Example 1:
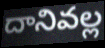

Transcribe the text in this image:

దానివల్ల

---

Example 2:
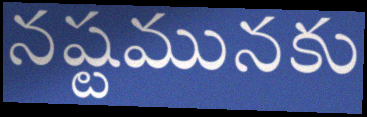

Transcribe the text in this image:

నష్టమునకు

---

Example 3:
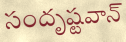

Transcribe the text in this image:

సందృష్టవాన్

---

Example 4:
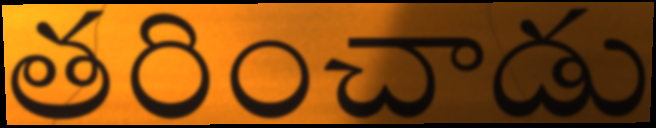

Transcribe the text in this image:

తరించాడు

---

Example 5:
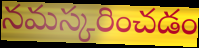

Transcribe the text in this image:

నమస్కరించడం